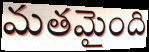
మతమైంది